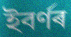
ইবৰ্ণৰ